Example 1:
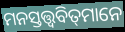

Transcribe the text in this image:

ମନସ୍ତତ୍ତ୍ୱବିତ୍‌ମାନେ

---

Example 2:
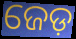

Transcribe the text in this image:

ଜେଡ଼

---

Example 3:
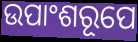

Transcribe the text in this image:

ଉପାଂଶରୂପେ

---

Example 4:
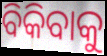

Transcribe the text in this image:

ବିକିବାକୁ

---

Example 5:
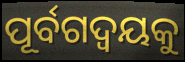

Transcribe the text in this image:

ପୂର୍ବଗଦ୍ଵୟକୁ